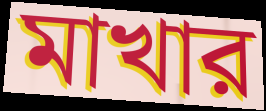
মাখার